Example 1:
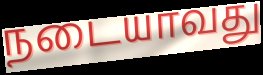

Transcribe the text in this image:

நடையாவது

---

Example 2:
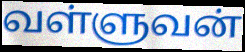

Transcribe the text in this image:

வள்ளுவன்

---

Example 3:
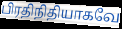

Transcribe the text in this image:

பிரதிநிதியாகவே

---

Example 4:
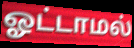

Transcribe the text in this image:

ஓட்டாமல்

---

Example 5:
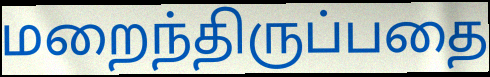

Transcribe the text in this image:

மறைந்திருப்பதை